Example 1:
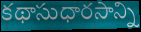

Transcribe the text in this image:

కథాసుధారసాన్ని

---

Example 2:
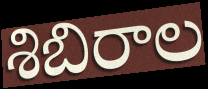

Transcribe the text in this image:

శిబిరాల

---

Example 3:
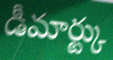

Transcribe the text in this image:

డీమార్ట్కు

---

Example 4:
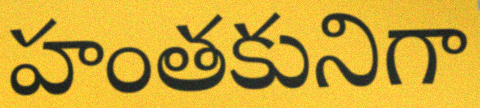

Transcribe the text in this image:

హంతకునిగా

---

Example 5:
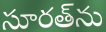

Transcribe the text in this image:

సూరత్‌ను